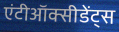
एंटीऑक्सीडेंट्स